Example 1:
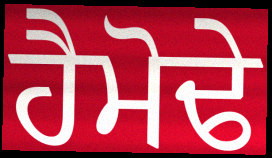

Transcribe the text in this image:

ਹੈਮੋਢੇ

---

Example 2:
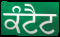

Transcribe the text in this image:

ਕੰਟੈਟ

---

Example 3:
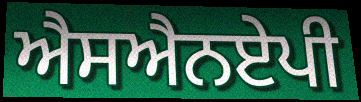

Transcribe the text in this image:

ਐਸਐਨਏਪੀ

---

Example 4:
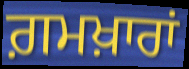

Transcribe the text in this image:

ਗ਼ਮਖ਼ਾਰਾਂ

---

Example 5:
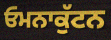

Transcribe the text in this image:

ਓਮਨਾਕੁੱਟਨ